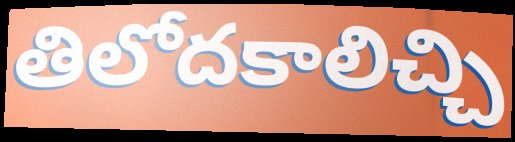
తిలోదకాలిచ్చి